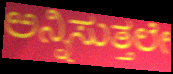
ಅನ್ನಿಸುತ್ತಲೇ